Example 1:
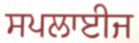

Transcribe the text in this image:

ਸਪਲਾਈਜ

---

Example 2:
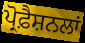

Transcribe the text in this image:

ਪ੍ਰੋਫ਼ੈਸ਼ਨਲਾਂ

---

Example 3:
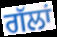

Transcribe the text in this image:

ਗੱਲਾਂ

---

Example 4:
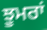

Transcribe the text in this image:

ਝੂਮਰਾਂ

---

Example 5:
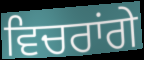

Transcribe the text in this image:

ਵਿਚਰਾਂਗੇ